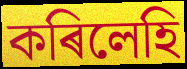
কৰিলেহি